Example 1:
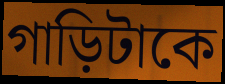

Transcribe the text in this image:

গাড়িটাকে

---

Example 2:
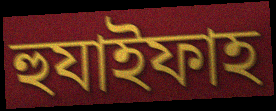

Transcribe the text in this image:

হুযাইফাহ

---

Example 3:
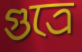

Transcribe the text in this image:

গুত্রে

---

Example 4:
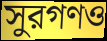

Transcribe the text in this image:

সুরগণও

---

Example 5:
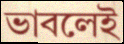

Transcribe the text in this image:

ভাবলেই